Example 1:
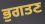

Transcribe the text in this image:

ਭੁਗਤਣ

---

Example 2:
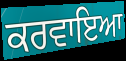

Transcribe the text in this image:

ਕਰਵਾਇਆ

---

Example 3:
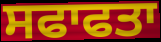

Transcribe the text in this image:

ਸਫਾਫਤਾ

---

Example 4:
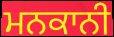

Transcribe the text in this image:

ਮਨਕਾਨੀ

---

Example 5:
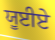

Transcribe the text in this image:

ਯੂਈਏ